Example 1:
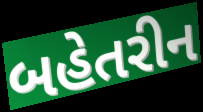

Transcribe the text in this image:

બહેતરીન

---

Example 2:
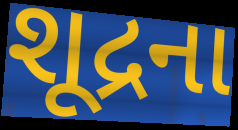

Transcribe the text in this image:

શૂદ્રના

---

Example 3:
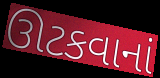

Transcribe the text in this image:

ઊટકવાનાં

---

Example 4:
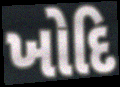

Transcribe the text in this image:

ખોદિ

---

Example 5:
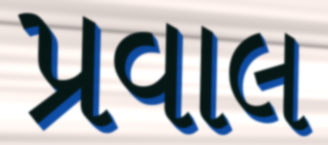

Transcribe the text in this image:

પ્રવાલ